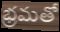
భ్రమతో